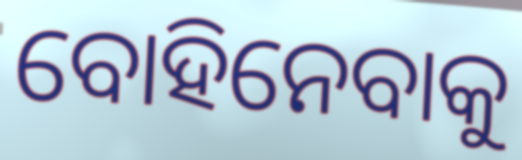
ବୋହିନେବାକୁ